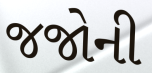
જજોની